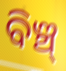
ବିଞ୍ଚ୍